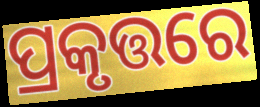
ପ୍ରକୃତ୍ତରେ